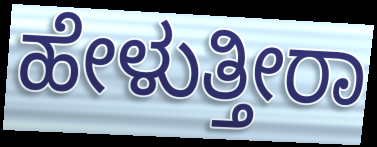
ಹೇಳುತ್ತೀರಾ